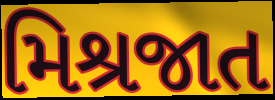
મિશ્રજાત